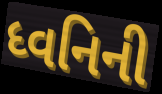
ધ્વનિની